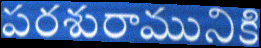
పరశురామునికి